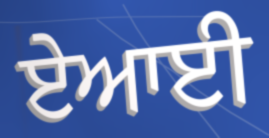
ਏਆਈ